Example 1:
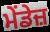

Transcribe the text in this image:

ਮੇਂਡੇਜ਼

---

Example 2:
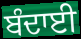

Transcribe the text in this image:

ਬੰਦਾਈ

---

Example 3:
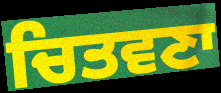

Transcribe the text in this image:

ਚਿਤਵਣਾ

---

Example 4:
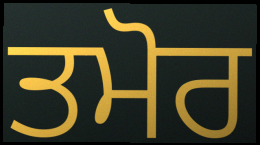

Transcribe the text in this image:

ਤਮੋਰ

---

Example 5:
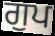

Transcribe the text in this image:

ਗੁਪ